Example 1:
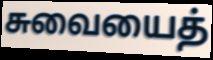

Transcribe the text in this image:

சுவையைத்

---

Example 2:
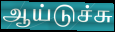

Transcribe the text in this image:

ஆய்டுச்சு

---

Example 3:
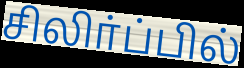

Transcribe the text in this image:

சிலிர்ப்பில்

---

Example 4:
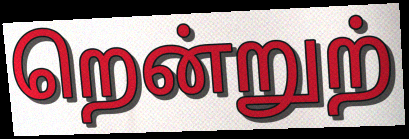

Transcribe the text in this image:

றென்றுற்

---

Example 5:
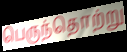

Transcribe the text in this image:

பெருந்தொற்று